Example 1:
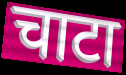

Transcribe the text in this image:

चाटा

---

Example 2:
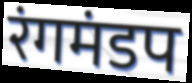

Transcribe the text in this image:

रंगमंडप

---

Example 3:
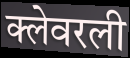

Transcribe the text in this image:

क्लेवरली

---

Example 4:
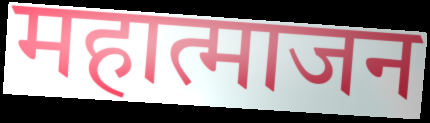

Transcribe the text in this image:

महात्माजन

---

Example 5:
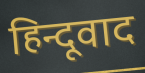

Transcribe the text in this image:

हिन्दूवाद